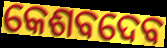
କେଶବଦେବ